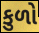
કુળો